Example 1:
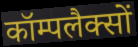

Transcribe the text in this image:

कॉम्पलैक्सों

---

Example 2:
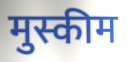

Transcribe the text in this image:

मुस्कीम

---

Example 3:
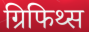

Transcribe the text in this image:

ग्रिफिथ्स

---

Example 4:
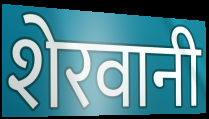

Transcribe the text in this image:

शेरवानी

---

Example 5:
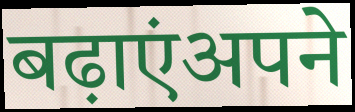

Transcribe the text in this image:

बढ़ाएंअपने